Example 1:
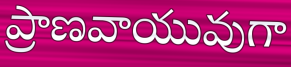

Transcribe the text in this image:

ప్రాణవాయువుగా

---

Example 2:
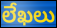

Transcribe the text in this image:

లేఖలు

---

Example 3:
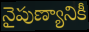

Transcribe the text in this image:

నైపుణ్యానికీ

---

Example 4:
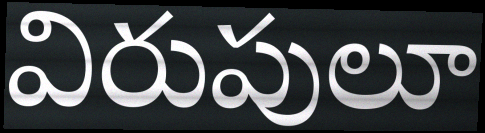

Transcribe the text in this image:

విరుపులూ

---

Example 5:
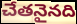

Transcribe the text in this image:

చేతనైనది